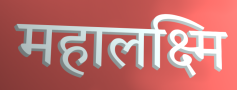
महालक्ष्मि